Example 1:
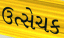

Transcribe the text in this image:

ઉત્સેચક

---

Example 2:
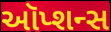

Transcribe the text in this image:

ઑપ્શન્સ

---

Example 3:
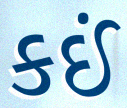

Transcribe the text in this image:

કઈં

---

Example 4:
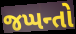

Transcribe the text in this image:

જપ્પન્તો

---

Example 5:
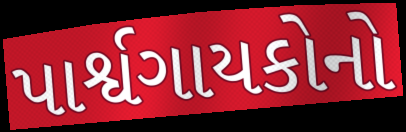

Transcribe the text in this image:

પાર્શ્વગાયકોનો